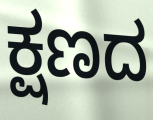
ಕ್ಷಣದ